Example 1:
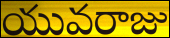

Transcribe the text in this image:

యువరాజు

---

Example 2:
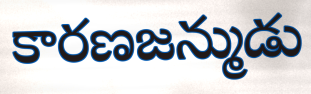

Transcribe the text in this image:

కారణజన్ముడు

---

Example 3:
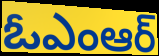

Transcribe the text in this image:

ఓఎంఆర్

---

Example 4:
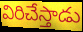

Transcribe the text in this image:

విరిచేస్తాడు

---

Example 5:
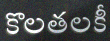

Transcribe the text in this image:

కొలతలకీ